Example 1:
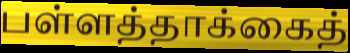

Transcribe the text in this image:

பள்ளத்தாக்கைத்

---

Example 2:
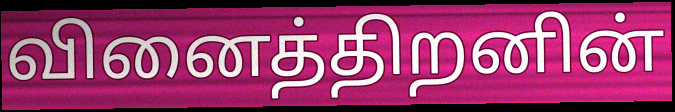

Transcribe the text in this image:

வினைத்திறனின்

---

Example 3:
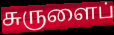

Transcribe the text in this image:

சுருளைப்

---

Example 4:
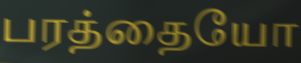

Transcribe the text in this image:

பரத்தையோ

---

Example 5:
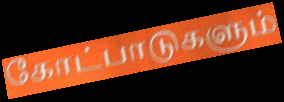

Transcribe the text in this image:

கோட்பாடுகளும்